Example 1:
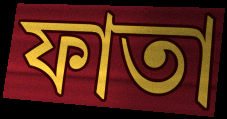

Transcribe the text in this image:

ফাতা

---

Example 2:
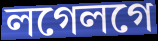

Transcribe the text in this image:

লগেলগে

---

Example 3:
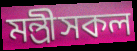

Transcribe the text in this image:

মন্ত্ৰীসকল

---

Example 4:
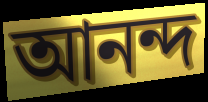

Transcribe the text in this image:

আনন্দ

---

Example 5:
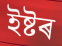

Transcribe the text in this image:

ইষ্টৰ